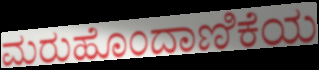
ಮರುಹೊಂದಾಣಿಕೆಯ